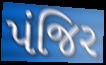
પંજિર